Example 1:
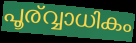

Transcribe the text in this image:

പൂര്വ്വാധികം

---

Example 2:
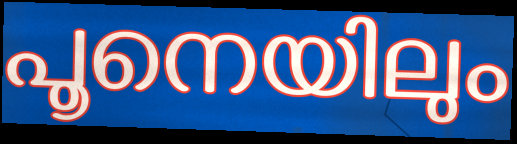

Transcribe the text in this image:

പൂനെയിലും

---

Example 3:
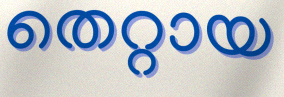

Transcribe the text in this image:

തെറ്റായ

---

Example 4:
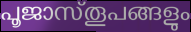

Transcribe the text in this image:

പൂജാസ്‌തൂപങ്ങളും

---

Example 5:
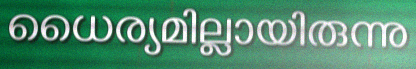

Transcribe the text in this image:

ധൈര്യമില്ലായിരുന്നു